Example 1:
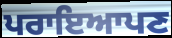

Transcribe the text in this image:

ਪਰਾਇਆਪਣ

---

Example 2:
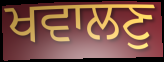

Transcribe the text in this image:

ਖਵਾਲਣੁ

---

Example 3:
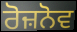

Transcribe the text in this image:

ਰੋਜ਼ਨੋਵ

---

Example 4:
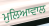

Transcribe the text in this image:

ਮੁਲਿਆਵਾਲ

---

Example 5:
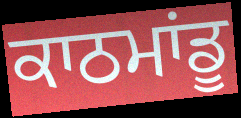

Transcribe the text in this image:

ਕਾਠਮਾਂਡੂ